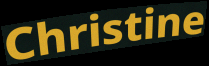
Christine